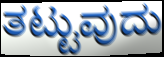
ತಟ್ಟುವುದು